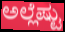
ಅಲ್ಲೆಷ್ಟು